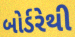
બોર્ડરેથી